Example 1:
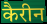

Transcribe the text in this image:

कैरीन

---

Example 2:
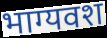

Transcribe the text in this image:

भाग्यवश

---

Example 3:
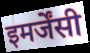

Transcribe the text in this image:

इमर्जेंसी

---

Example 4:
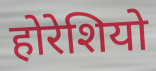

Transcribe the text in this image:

होरेशियो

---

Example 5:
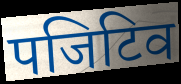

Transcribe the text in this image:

पजिटिव